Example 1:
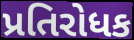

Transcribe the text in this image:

પ્રતિરોધક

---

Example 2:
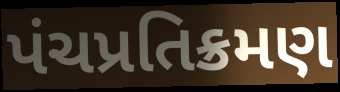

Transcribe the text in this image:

પંચપ્રતિક્રમણ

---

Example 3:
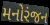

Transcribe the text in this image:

મનોરંજન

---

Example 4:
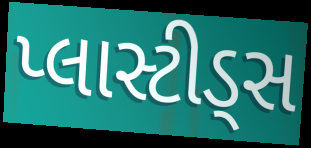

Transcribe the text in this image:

પ્લાસ્ટીડ્સ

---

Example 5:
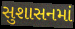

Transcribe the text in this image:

સુશાસનમાં